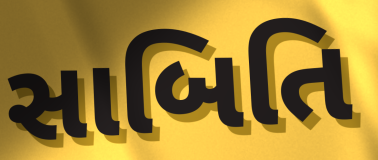
સાબિતિ